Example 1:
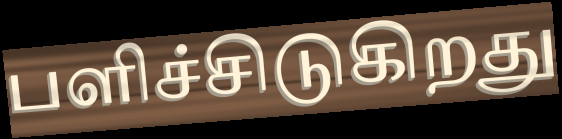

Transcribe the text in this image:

பளிச்சிடுகிறது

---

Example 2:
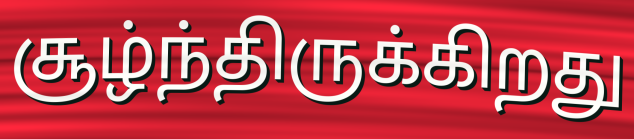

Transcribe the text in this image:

சூழ்ந்திருக்கிறது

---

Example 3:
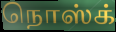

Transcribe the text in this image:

நொஸ்க்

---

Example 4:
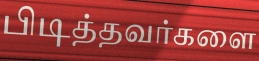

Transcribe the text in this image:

பிடித்தவர்களை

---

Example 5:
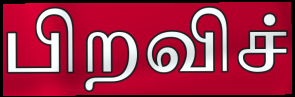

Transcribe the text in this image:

பிறவிச்